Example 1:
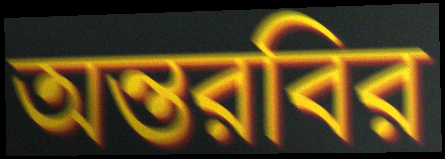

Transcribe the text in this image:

অন্তরবির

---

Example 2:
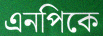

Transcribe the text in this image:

এনপিকে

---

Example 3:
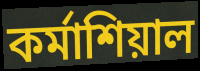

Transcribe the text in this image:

কর্মাশিয়াল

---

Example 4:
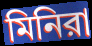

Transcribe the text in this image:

মিনিরা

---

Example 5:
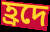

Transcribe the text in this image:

হ্রদে